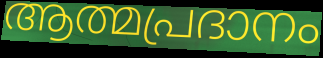
ആത്മപ്രദാനം